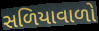
સળિયાવાળો